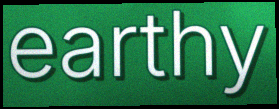
earthy